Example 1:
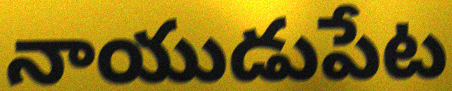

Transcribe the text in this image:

నాయుడుపేట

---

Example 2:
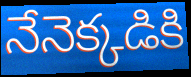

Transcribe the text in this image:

నేనెక్కడికి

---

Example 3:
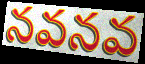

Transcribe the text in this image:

నవనవ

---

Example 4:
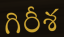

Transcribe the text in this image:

గిరీశ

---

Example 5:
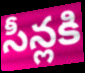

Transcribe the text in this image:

సీన్లకి